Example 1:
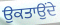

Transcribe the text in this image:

ਉਕਤਾਉਂਦੇ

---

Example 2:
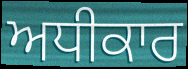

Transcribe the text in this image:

ਅਧੀਕਾਰ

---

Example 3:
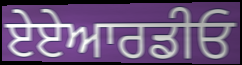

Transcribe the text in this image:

ਏਏਆਰਡੀਓ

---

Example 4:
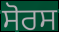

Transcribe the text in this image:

ਸੋਰਸ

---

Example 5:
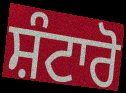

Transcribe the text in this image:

ਸ਼ੰਟਾਰੋ